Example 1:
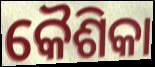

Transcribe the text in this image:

କୈଶିକା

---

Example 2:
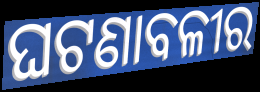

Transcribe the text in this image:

ଘଟଣାବଳୀର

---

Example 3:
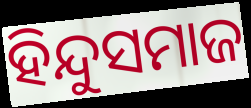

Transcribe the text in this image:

ହିନ୍ଦୁସମାଜ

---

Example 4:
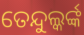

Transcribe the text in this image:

ତେନ୍ଦୁଲ୍କର୍ଙ୍କ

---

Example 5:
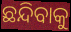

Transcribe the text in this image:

ଛନ୍ଦିବାକୁ